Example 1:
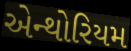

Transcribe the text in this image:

એન્થોરિયમ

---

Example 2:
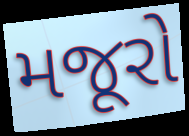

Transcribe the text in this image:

મજૂરો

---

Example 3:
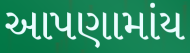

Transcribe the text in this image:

આપણામાંય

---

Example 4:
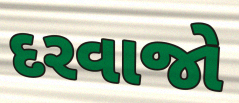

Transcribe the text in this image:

દરવાજો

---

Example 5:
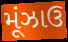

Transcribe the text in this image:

મૂંઝાઉ